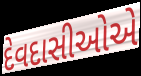
દેવદાસીઓએ